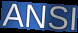
ANSI